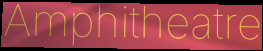
Amphitheatre